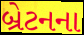
બ્રેટનના